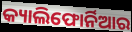
କ୍ୟାଲିଫୋର୍ନିଆର